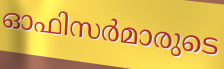
ഓഫിസർമാരുടെ